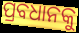
ପ୍ରବଧାନକୁ